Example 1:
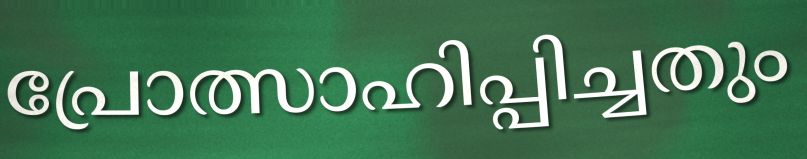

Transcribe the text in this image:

പ്രോത്സാഹിപ്പിച്ചതും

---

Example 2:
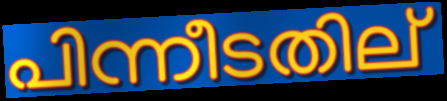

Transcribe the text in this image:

പിന്നീടതില്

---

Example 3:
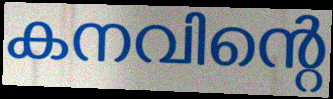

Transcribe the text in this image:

കനവിന്റെ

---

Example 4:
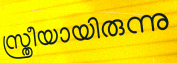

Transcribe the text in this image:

സ്ത്രീയായിരുന്നു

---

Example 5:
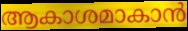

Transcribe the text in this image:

ആകാശമാകാൻ